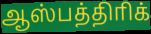
ஆஸ்பத்திரிக்